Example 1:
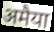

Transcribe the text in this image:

अमैया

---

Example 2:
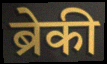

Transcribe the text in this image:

ब्रेकी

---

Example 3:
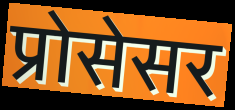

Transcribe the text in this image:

प्रोसेसर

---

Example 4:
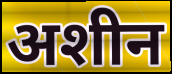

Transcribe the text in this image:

अशीन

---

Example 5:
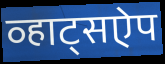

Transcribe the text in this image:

व्‍हाट्सऐप